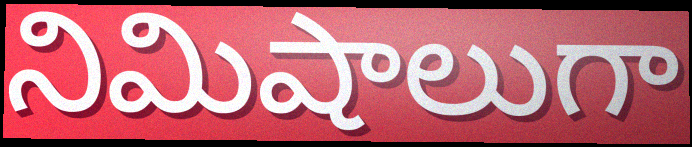
నిమిషాలుగా